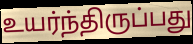
உயர்ந்திருப்பது